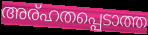
അര്ഹതപ്പെടാത്ത